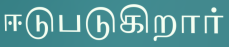
ஈடுபடுகிறார்